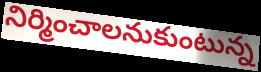
నిర్మించాలనుకుంటున్న